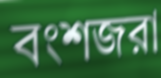
বংশজরা